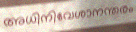
അധിനിവേശാനന്തരം